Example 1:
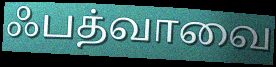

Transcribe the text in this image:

ஃபத்வாவை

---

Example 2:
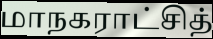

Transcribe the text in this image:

மாநகராட்சித்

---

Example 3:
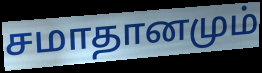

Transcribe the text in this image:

சமாதானமும்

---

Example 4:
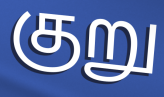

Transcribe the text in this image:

குறு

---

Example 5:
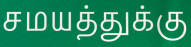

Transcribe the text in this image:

சமயத்துக்கு